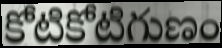
కోటికోటిగుణం